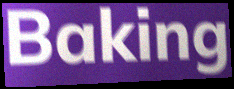
Baking